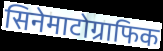
सिनेमाटोग्राफिक